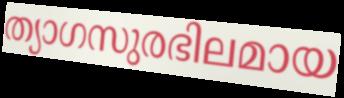
ത്യാഗസുരഭിലമായ